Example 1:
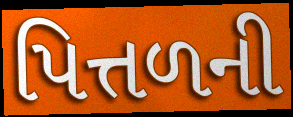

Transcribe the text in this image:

પિત્તળની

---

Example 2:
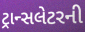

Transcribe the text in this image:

ટ્રાન્સલેટરની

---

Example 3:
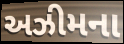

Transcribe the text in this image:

અઝીમના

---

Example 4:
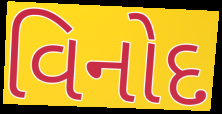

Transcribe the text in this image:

વિનોદ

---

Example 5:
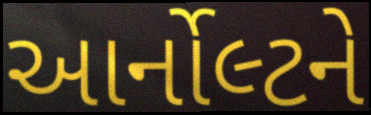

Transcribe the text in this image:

આર્નોલ્ટને